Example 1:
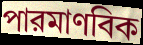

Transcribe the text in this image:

পারমাণবিক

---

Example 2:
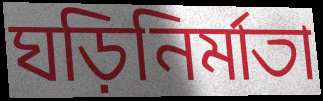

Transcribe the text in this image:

ঘড়িনির্মাতা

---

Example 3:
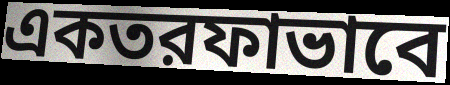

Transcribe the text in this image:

একতরফাভাবে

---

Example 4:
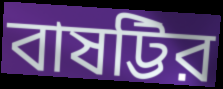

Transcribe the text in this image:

বাষট্টির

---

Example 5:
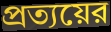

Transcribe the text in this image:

প্রত্যয়ের